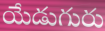
యేడుగురు